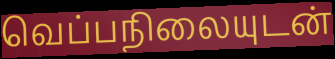
வெப்பநிலையுடன்